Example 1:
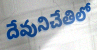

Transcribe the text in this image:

దేవునిచేతిలో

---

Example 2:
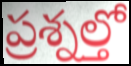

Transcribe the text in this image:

ప్రశ్నల్తో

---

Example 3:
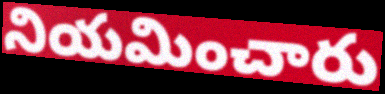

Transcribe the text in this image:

నియమించారు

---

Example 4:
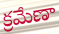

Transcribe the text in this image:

క్రమేణా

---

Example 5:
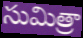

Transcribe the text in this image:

సుమిత్రా